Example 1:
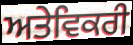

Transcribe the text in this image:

ਅਤੇਵਿਕਰੀ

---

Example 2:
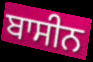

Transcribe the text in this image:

ਬਾਸੀਨ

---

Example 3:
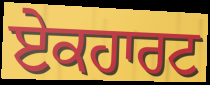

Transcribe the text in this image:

ਏਕਹਾਰਟ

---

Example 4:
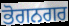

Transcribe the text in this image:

ਭੋਗਨਗਰ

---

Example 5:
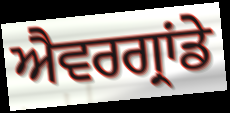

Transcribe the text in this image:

ਐਵਰਗ੍ਰਾਂਡੇ